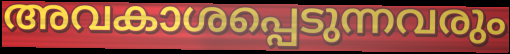
അവകാശപ്പെടുന്നവരും